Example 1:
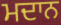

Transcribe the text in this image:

ਮਦਾਨ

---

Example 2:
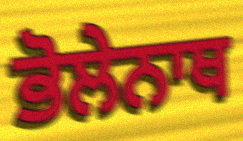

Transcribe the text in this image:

ਭੋਲੇਨਾਥ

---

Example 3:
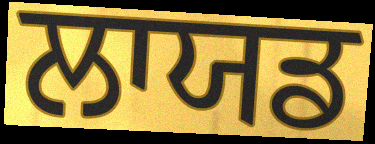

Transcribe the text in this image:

ਲਾਯਡ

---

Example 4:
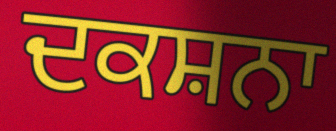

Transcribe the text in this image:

ਦਕਸ਼ਨਾ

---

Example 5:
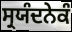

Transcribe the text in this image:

ਸ੍ਰਯੰਦਨੇਕੰ